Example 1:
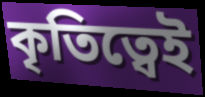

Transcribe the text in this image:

কৃতিত্বেই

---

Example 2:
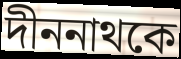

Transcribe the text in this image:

দীননাথকে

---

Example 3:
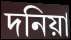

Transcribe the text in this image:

দনিয়া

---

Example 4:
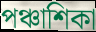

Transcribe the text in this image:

পঞ্চাশিকা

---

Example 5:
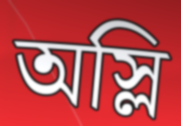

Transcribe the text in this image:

অস্লি